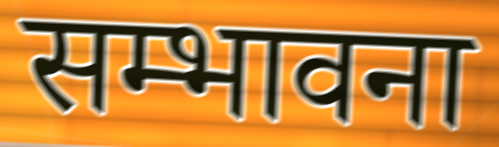
सम्भावना